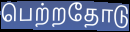
பெற்றதோடு